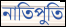
নাতিপুতি